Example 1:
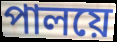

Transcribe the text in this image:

পালয়ে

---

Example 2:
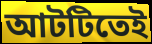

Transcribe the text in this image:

আটটিতেই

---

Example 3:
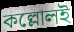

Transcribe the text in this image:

কল্লোলই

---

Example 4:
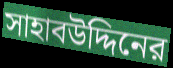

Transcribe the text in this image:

সাহাবউদ্দিনের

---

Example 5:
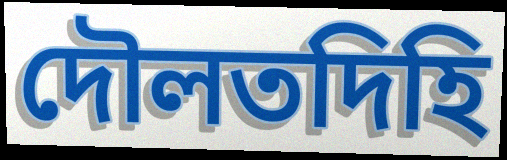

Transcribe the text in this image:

দৌলতদিহি